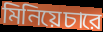
মিনিয়েচারে